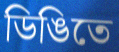
ডিঙিতে